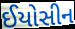
ઈયોસીન